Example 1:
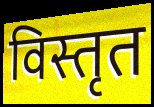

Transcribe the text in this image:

विस्तृत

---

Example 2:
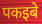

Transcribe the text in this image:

पकइबे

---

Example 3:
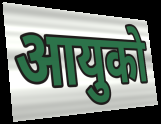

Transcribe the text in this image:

आयुको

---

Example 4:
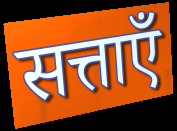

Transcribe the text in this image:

सत्ताएँ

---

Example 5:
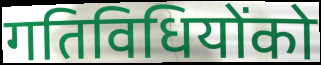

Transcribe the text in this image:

गतिविधियोंको